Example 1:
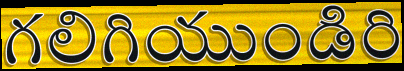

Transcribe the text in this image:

గలిగియుండిరి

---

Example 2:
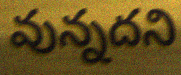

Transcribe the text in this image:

వున్నదని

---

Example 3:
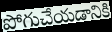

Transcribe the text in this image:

పోగుచేయడానికి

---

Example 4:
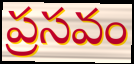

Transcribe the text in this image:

ప్రసవం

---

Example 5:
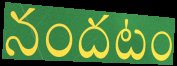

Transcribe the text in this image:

నందటం